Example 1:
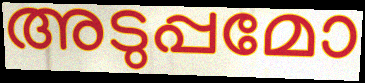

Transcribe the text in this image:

അടുപ്പമോ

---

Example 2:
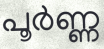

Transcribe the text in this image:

പൂർണ്ണ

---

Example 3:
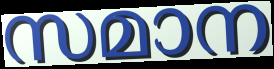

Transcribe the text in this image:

സമാന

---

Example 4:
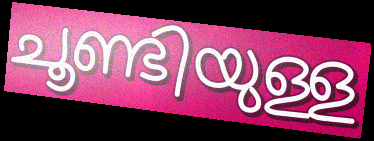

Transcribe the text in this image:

ചൂണ്ടിയുള്ള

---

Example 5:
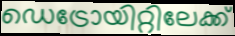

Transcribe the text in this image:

ഡെട്രോയിറ്റിലേക്ക്